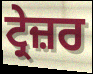
ਟ੍ਰੇਜ਼ਰ